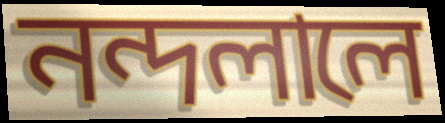
নন্দলালে